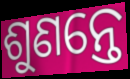
ଶୁଣନ୍ତେ